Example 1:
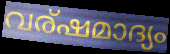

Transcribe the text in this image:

വര്ഷമാദ്യം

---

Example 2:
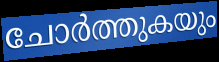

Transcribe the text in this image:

ചോർത്തുകയും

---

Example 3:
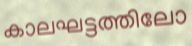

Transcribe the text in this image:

കാലഘട്ടത്തിലോ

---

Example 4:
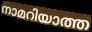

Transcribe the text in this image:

നാമറിയാത്ത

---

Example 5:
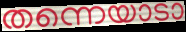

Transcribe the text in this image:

തന്നെയാടാ